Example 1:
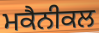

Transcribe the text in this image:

ਮਕੈਨੀਕਲ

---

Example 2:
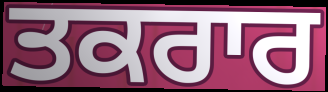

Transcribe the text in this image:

ਤਕਰਾਰ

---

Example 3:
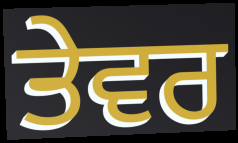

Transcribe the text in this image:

ਤੇਵਰ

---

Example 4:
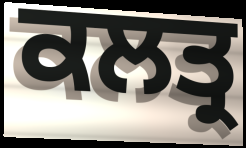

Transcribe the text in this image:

ਕਲਤ੍ਰ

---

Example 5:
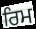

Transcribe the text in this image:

ਰਿਮ